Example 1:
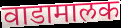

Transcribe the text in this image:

वाडामालक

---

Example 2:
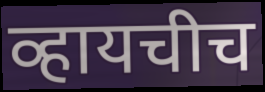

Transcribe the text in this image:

व्हायचीच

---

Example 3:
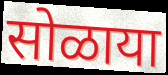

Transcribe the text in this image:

सोळाया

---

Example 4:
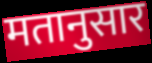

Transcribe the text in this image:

मतानुसार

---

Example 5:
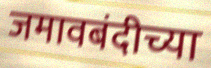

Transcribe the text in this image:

जमावबंदीच्या